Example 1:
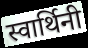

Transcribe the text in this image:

स्वार्थिनी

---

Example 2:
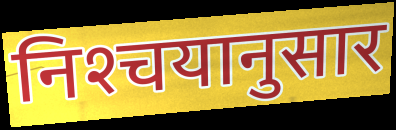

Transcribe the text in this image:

निश्चयानुसार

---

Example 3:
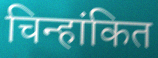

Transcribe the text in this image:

चिन्हांकित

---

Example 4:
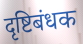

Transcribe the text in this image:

दृष्टिबंधक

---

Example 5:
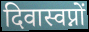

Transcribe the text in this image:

दिवास्वप्नों